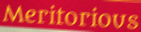
Meritorious